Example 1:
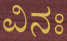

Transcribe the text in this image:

ವಿನಃ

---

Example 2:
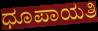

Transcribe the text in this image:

ಧೂಪಾಯತಿ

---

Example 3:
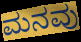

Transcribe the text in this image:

ಮನವು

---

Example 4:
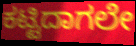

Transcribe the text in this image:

ಕಟ್ಟಿದಾಗಲೇ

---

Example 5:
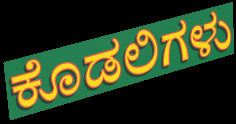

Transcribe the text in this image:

ಕೊಡಲಿಗಳು